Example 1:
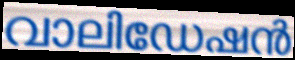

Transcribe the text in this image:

വാലിഡേഷൻ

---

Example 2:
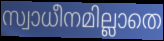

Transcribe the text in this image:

സ്വാധീനമില്ലാതെ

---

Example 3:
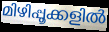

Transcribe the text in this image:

മിഴിപ്പൂക്കളിൽ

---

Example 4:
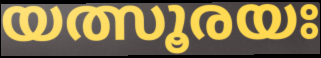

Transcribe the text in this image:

യത്സൂരയഃ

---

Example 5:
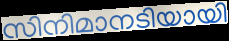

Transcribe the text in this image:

സിനിമാനടിയായി